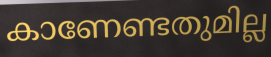
കാണേണ്ടതുമില്ല